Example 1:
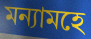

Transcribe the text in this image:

মন্যামহে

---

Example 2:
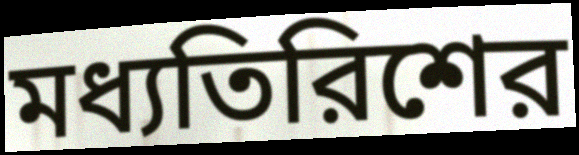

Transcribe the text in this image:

মধ্যতিরিশের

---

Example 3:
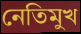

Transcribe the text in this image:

নেতিমুখ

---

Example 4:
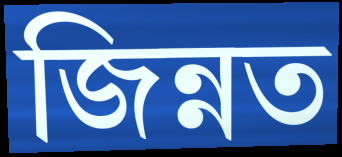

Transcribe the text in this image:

জিন্নত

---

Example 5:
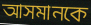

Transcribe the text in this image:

আসমানকে